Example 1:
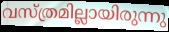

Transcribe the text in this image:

വസ്ത്രമില്ലായിരുന്നു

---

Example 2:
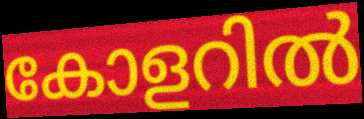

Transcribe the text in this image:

കോളറിൽ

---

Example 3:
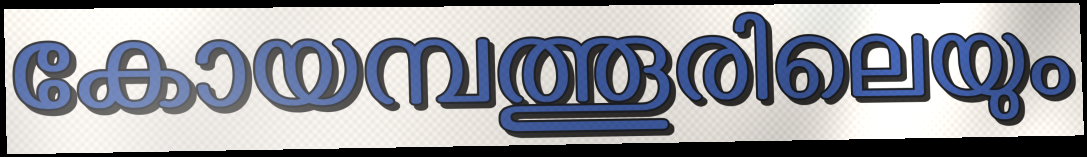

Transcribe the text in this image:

കോയമ്പത്തൂരിലെയും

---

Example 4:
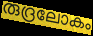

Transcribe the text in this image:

രുദ്രലോകം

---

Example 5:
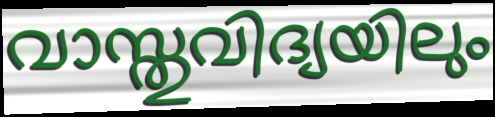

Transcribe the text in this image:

വാസ്തുവിദ്യയിലും